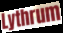
Lythrum